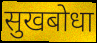
सुखबोधा